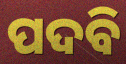
ପଦବି